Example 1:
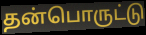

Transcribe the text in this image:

தன்பொருட்டு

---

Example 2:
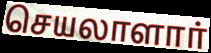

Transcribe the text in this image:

செயலாளார்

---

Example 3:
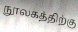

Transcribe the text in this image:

நூலகத்திற்கு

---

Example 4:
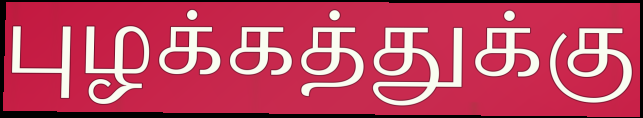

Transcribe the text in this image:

புழக்கத்துக்கு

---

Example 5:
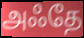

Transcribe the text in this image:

அஃதே